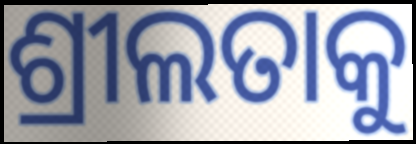
ଶ୍ରୀଲତାକୁ